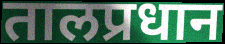
तालप्रधान